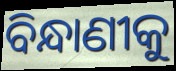
ବିନ୍ଧାଣୀକୁ